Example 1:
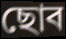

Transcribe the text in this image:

ছোব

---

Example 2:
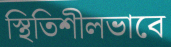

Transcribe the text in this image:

স্থিতিশীলভাবে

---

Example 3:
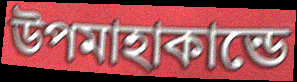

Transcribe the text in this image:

উপমাহাকান্ডে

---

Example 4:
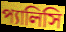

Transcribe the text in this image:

প্যালিসি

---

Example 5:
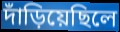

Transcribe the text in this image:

দাঁড়িয়েছিলে